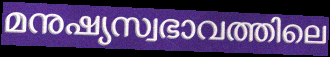
മനുഷ്യസ്വഭാവത്തിലെ